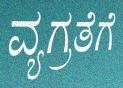
ವ್ಯಗ್ರತೆಗೆ